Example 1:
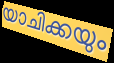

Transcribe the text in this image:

യാചിക്കയും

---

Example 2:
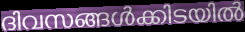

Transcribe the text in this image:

ദിവസങ്ങൾക്കിടയിൽ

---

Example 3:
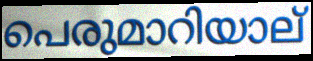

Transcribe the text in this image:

പെരുമാറിയാല്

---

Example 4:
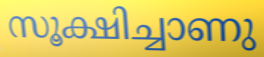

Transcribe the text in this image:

സൂക്ഷിച്ചാണു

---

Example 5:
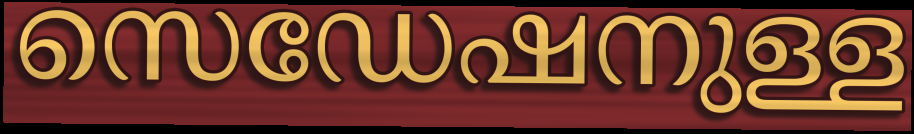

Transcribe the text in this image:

സെഡേഷനുള്ള